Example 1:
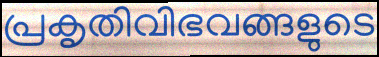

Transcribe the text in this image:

പ്രകൃതിവിഭവങ്ങളുടെ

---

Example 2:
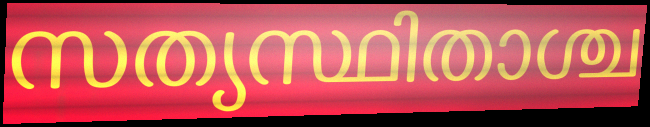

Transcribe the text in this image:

സത്യസ്ഥിതാശ്ച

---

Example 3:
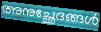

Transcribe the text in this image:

അനുച്ഛേദങ്ങൾ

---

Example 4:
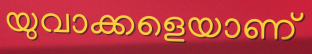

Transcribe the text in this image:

യുവാക്കളെയാണ്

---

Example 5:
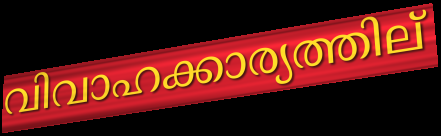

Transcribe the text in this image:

വിവാഹക്കാര്യത്തില്